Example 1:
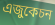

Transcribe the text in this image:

এজুকেচন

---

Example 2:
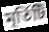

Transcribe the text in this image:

মূৰ্তিটি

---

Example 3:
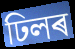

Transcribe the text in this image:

ঢিলৰ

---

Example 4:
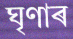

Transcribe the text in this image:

ঘৃণাৰ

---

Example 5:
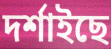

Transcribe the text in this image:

দৰ্শাইছে